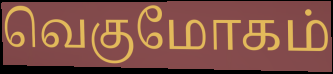
வெகுமோகம்